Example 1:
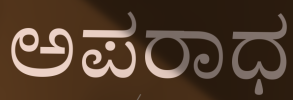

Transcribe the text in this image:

ಅಪರಾಧ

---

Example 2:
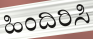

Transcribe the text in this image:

ಹಿಂದಿರಿಸಿ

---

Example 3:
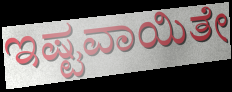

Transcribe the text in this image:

ಇಷ್ಟವಾಯಿತೇ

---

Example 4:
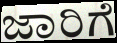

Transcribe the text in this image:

ಜಾರಿಗೆ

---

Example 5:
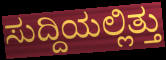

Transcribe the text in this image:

ಸುದ್ದಿಯಲ್ಲಿತ್ತು